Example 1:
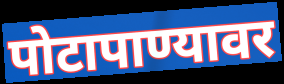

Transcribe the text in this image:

पोटापाण्यावर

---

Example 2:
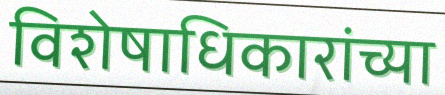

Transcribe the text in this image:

विशेषाधिकारांच्या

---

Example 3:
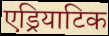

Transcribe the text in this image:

एड्रियाटिक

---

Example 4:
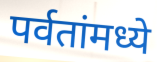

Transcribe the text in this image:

पर्वतांमध्ये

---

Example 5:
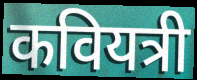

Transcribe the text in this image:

कवियत्री